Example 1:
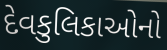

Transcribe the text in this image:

દેવકુલિકાઓનો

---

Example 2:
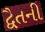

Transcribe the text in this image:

દ્વૈતની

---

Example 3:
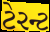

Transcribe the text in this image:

ટેરન્ટ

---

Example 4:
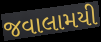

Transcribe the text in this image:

જવાલામયી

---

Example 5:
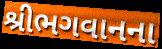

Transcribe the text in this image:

શ્રીભગવાનના